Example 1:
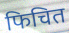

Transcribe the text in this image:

फिचित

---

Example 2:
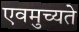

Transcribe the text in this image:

एवमुच्यते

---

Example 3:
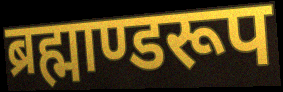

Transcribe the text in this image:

ब्रह्माण्डरूप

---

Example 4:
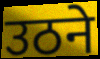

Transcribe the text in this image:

उठने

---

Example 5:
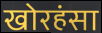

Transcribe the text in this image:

खोरहंसा